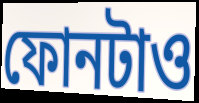
ফোনটাও